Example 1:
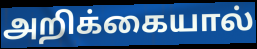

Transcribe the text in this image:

அறிக்கையால்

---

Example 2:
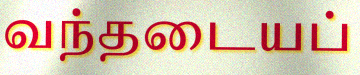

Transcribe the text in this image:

வந்தடையப்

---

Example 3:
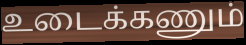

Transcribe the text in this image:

உடைக்கணும்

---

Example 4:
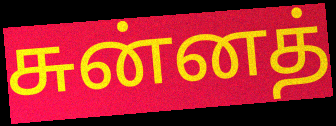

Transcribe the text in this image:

சுன்னத்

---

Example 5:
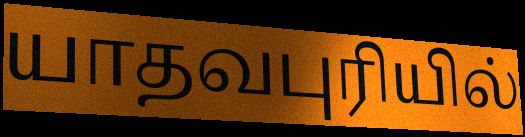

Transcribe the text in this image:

யாதவபுரியில்